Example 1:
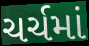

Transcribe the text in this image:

ચર્ચમાં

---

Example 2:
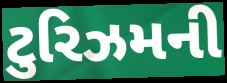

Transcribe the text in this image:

ટુરિઝમની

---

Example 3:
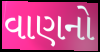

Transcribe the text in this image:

વાણનો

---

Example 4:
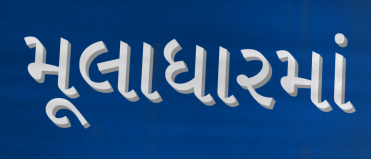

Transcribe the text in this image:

મૂલાધારમાં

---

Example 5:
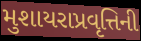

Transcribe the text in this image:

મુશાયરાપ્રવૃત્તિની